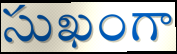
సుఖంగా